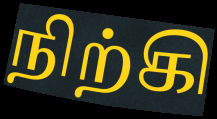
நிற்கி